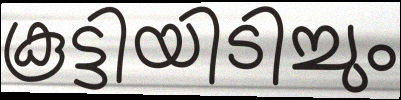
കൂട്ടിയിടിച്ചും